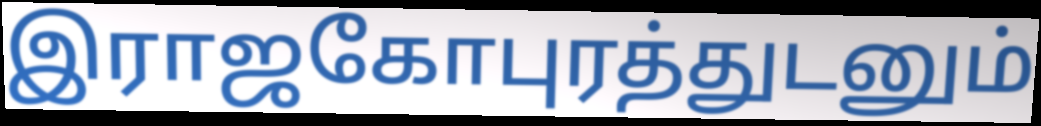
இராஜகோபுரத்துடனும்